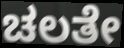
ಚಲತೇ